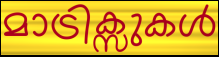
മാട്രിക്സുകൾ